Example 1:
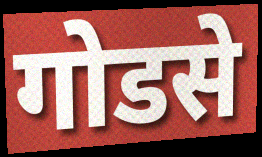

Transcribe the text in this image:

गोडसे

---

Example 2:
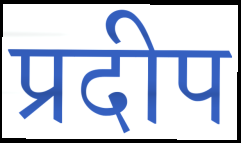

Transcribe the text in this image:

प्रदीप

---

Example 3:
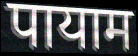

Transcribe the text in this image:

पायाम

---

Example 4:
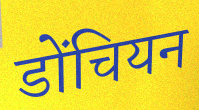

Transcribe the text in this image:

डोंचियन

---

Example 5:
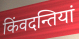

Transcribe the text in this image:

किंवदन्तियां